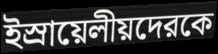
ইস্রায়েলীয়দেরকে